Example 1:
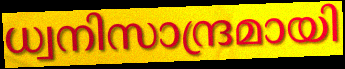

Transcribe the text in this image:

ധ്വനിസാന്ദ്രമായി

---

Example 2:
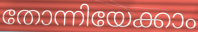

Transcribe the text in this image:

തോന്നിയേക്കാം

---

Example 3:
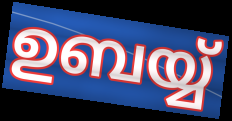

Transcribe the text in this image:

ഉബയ്യ്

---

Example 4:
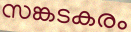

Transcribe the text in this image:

സങ്കടകരം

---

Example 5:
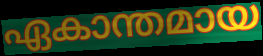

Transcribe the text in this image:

ഏകാന്തമായ